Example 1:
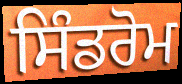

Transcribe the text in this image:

ਸਿੰਡਰੋਮ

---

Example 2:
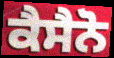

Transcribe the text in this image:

ਕੈਸੈਨੋ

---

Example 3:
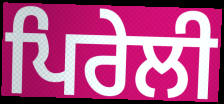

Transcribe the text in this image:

ਪਿਰੇਲੀ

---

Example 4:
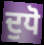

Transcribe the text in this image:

ਦੁਧੋ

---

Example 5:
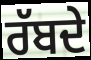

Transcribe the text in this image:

ਰੱਬਦੇ